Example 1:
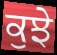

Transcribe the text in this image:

ਕੁਝੇ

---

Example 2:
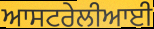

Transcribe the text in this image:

ਆਸਟਰੇਲੀਆਈ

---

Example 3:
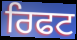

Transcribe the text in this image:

ਰਿਫਟ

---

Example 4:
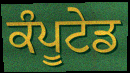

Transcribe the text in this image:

ਕੰਪੂਟੇਡ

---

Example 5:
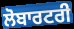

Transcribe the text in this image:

ਲੋਬਾਰਟਰੀ